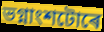
ভগ্নাংশটোৰে